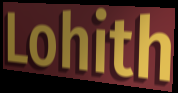
Lohith